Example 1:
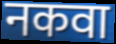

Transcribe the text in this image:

नकवा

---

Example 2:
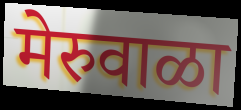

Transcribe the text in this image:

मेरुवाळा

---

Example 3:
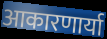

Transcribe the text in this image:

आकारणार्या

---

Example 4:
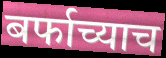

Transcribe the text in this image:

बर्फाच्याच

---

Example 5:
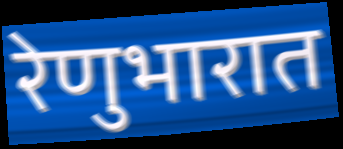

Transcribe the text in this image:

रेणुभारात